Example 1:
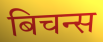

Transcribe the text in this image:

बिचन्स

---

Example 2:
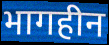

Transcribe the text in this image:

भागहीन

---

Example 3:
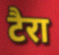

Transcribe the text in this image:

टैरा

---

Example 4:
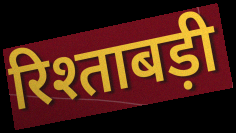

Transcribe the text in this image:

रिश्ताबड़ी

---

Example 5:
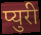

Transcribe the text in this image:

प्युरी